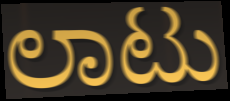
ಲಾಟು